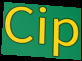
Cip